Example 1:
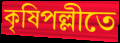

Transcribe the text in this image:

কৃষিপল্লীতে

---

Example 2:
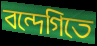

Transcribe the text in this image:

বন্দেগিতে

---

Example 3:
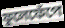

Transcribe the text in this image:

ফুলেফেঁপে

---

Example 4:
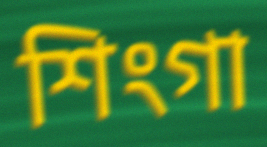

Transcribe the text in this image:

শিংগা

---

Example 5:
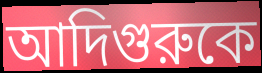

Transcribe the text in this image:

আদিগুরুকে